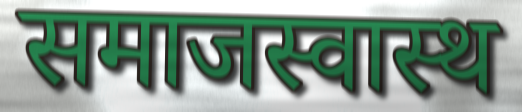
समाजस्वास्थ